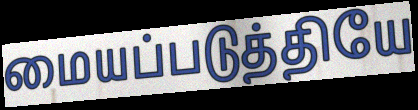
மையப்படுத்தியே